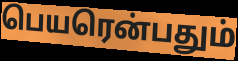
பெயரென்பதும்